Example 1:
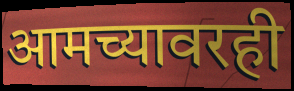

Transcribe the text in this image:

आमच्यावरही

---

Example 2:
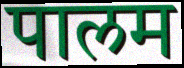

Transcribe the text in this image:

पालम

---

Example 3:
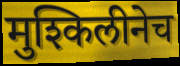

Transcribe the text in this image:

मुश्किलीनेच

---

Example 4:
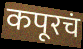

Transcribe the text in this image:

कपूरचं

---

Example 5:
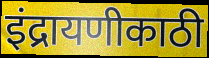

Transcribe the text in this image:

इंद्रायणीकाठी